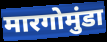
मारगोमुंडा